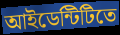
আইডেন্টিটিতে